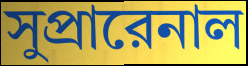
সুপ্রারেনাল